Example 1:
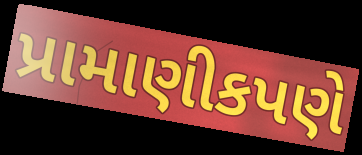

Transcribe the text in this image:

પ્રામાણીકપણે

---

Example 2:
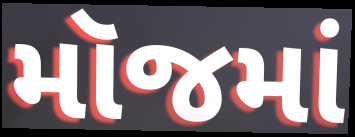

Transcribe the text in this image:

મૉજમાં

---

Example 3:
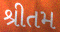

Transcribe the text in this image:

શ્રીતમ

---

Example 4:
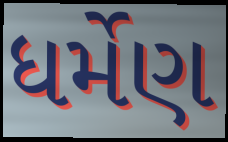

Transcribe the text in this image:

ધર્મેણ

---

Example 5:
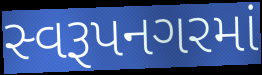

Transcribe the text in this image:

સ્વરૂપનગરમાં